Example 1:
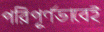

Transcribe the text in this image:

পরিপূর্ণভাবেই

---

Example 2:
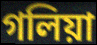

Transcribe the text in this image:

গলিয়া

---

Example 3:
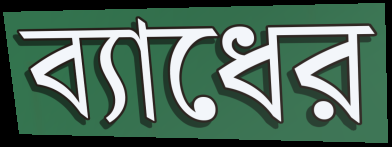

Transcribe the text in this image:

ব্যাধের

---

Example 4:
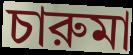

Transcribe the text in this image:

চারুমা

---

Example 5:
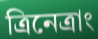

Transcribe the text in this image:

ত্রিনেত্রাং